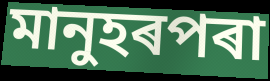
মানুহৰপৰা